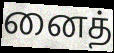
னைத்